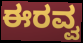
ಈರವ್ವ